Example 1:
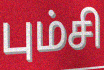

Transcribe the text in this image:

பும்சி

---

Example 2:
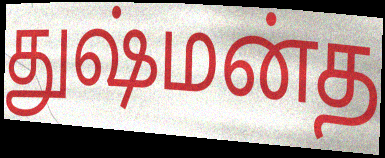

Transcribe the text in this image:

துஷ்மன்த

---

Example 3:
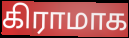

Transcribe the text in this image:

கிராமாக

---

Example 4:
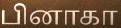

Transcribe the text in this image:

பினாகா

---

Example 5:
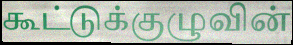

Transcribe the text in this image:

கூட்டுக்குழுவின்